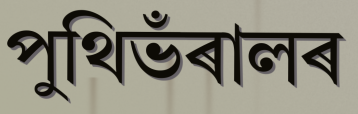
পুথিভঁৰালৰ